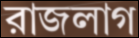
রাজলাগ